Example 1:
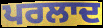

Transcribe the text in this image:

ਪਰਲਾਦ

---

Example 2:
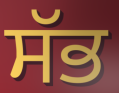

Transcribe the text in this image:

ਸੱਭ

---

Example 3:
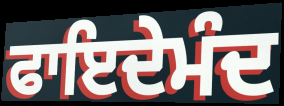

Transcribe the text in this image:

ਫਾਇਦੇਮੰਦ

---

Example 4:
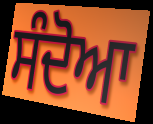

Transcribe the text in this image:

ਸੰਦੋਆ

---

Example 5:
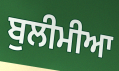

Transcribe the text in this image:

ਬੁਲੀਮੀਆ